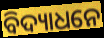
ବିଦ୍ୟାଧନେ